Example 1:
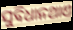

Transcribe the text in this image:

ସୁବିଧାନଥାଏ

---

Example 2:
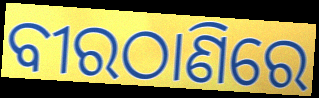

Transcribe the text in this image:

ବୀରଠାଣିରେ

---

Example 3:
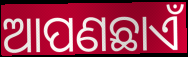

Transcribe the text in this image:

ଆପଣଛାଏଁ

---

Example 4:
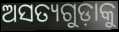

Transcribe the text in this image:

ଅସତ୍ୟଗୁଡ଼ାକୁ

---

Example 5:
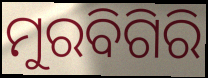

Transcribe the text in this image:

ମୁରବିଗିରି